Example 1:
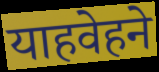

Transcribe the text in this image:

याहवेहने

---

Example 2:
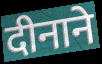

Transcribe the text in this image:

दीनाने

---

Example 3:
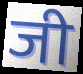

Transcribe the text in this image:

जी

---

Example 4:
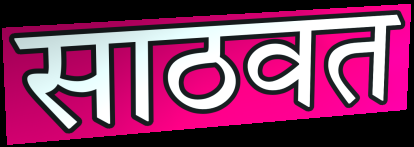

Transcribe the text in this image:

साठवत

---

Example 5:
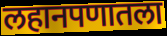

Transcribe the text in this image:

लहानपणातला